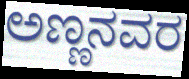
ಅಣ್ಣನವರ